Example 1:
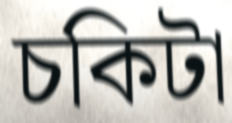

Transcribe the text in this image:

চকিটা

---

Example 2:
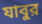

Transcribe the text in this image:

যাবুর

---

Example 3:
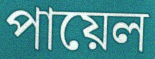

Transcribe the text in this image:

পায়েল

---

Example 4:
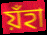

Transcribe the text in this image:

য়ঁহা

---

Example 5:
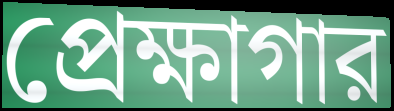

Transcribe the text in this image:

প্রেক্ষাগার